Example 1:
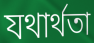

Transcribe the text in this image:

যথাৰ্থতা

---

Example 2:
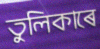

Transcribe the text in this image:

তুলিকাৰে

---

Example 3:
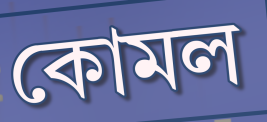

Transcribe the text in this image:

কোমল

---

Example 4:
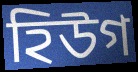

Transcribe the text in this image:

হিউগ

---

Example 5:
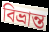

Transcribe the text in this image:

বিভ্ৰান্ত